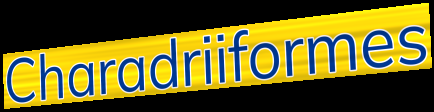
Charadriiformes